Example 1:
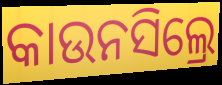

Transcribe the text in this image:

କାଉନସିଲ୍ରେ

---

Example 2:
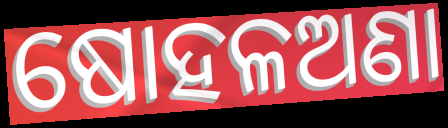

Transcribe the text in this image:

ଷୋହଳଅଣା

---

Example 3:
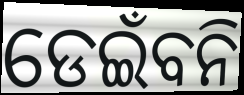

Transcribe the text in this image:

ଡେଇଁବନି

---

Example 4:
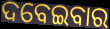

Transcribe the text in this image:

ଦବେଇବାର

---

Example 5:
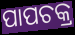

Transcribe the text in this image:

ପାପଚକ୍ର